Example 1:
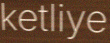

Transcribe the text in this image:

ketliye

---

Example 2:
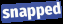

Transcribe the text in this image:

snapped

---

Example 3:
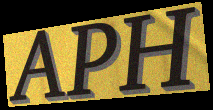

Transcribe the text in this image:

APH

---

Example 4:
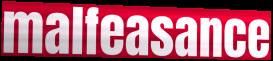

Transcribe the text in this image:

malfeasance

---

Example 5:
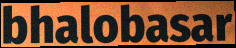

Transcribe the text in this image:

bhalobasar